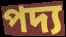
পদ্য